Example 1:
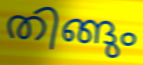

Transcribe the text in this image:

തിങ്ങും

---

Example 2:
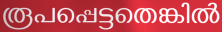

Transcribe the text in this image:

രൂപപ്പെട്ടതെങ്കിൽ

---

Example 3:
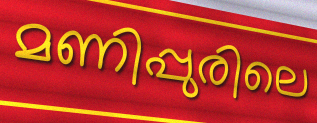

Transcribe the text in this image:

മണിപ്പുരിലെ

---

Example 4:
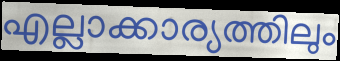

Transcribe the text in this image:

എല്ലാക്കാര്യത്തിലും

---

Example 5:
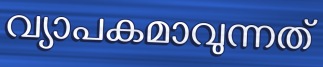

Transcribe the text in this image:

വ്യാപകമാവുന്നത്